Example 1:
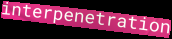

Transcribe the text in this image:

interpenetration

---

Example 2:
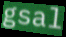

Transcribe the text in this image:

gsal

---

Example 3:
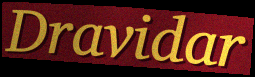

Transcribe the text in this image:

Dravidar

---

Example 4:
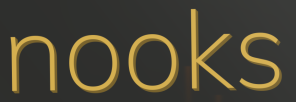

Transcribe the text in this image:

nooks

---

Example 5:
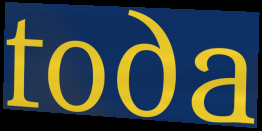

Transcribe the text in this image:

toda